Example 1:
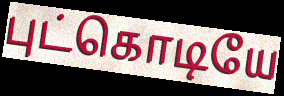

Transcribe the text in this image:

புட்கொடியே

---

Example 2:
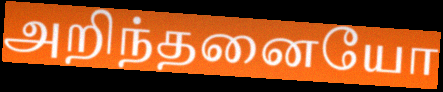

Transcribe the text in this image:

அறிந்தனையோ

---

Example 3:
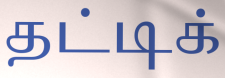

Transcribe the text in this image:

தட்டிக்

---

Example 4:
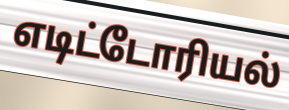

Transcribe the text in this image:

எடிட்டோரியல்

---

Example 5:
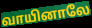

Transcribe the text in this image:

வாயினாலே